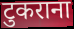
टुकराना